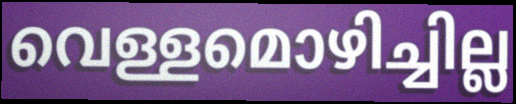
വെള്ളമൊഴിച്ചില്ല